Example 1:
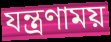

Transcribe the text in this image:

যন্ত্রণাময়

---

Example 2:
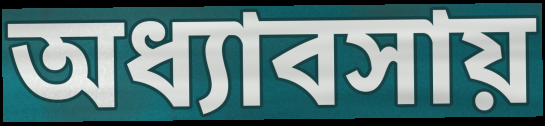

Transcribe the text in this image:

অধ্যাবসায়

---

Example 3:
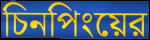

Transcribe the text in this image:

চিনপিংয়ের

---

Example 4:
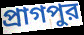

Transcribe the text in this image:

প্রাগপুর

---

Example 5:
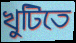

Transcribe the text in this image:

খুটিতে